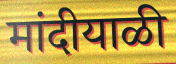
मांदीयाळी